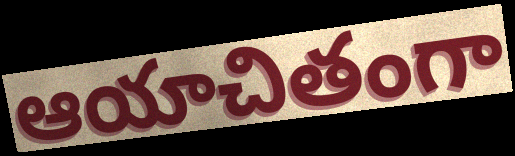
ఆయాచితంగా